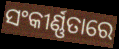
ସଂକୀର୍ଣ୍ଣତାରେ